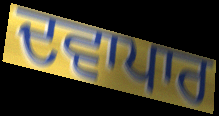
ਦਵਾਪਾਰ